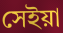
সেইয়া